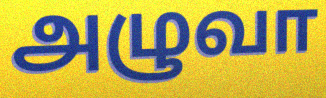
அழுவா